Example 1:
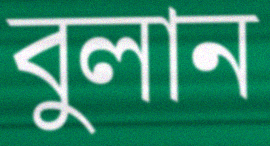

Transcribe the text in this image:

বুলান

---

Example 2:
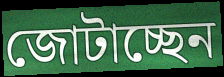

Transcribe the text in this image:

জোটাচ্ছেন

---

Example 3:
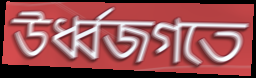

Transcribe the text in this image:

উর্ধ্বজগতে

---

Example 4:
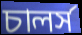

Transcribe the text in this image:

চালর্স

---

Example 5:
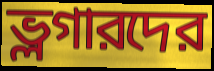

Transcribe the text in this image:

ভ্লগারদের